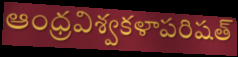
ఆంధ్రవిశ్వకళాపరిషత్